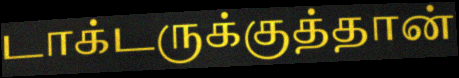
டாக்டருக்குத்தான்